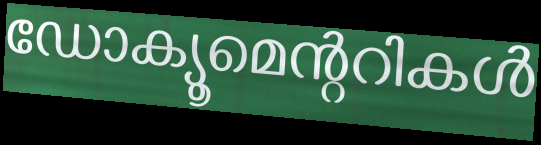
ഡോക്യൂമെന്ററികൾ